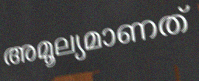
അമൂല്യമാണത്